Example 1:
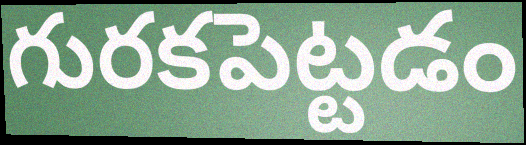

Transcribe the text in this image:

గురకపెట్టడం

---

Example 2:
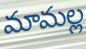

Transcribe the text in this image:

మామల్ల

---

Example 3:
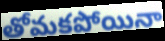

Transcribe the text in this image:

తోమకపోయినా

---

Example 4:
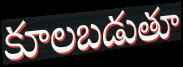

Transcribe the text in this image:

కూలబడుతూ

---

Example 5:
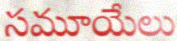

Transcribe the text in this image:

సమూయేలు